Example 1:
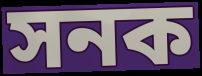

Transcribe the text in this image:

সনক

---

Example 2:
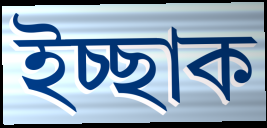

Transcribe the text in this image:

ইচ্ছাক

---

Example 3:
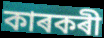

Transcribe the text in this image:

কাৰকৰী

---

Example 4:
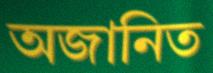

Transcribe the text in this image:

অজানিত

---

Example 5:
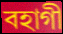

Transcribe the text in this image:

বহাগী